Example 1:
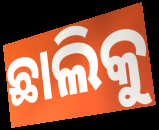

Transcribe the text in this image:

ଛାଲିକୁ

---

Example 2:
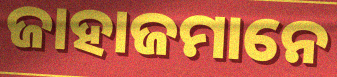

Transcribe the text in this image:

ଜାହାଜମାନେ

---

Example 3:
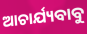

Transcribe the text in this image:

ଆଚାର୍ଯ୍ୟବାବୁ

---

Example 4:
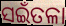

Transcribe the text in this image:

ସଇଁତଳା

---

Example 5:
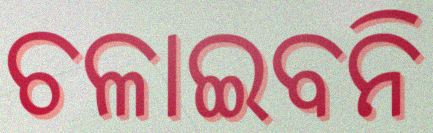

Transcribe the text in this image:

ଚଳାଇବନି